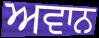
ਅਵਾਨ